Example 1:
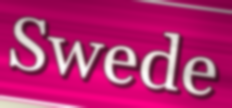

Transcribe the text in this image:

Swede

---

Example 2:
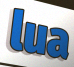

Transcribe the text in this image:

lua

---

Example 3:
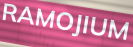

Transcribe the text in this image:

RAMOJIUM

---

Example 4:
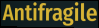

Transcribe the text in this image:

Antifragile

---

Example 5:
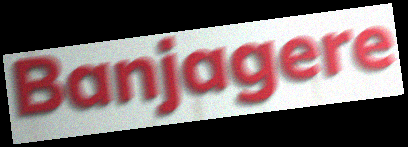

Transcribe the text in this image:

Banjagere